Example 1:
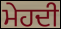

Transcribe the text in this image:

ਮੇਹਦੀ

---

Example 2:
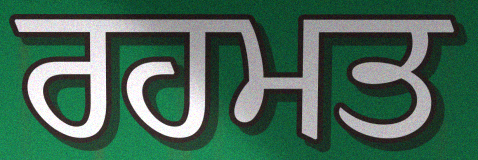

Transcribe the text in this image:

ਰਹਮਤ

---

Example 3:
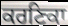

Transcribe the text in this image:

ਕਰਣਿਕਾ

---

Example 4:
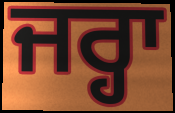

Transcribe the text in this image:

ਜਰ੍ਹਾ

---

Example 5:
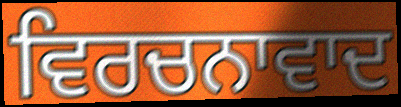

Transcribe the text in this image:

ਵਿਰਚਨਾਵਾਦ